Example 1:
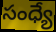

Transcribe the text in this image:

సంధ్యే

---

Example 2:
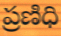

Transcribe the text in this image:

ప్రణిధి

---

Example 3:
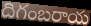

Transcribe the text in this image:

దిగంబరాయ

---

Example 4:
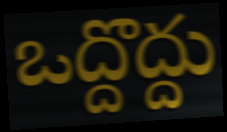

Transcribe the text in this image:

ఒద్దొద్దు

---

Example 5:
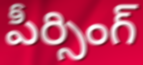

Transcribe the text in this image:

పీర్సింగ్